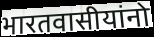
भारतवासीयांनो